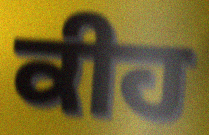
ਕੀਹ